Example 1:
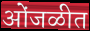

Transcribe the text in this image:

ओंजळीत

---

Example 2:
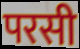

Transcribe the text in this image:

परसी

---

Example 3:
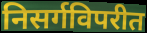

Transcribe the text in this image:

निसर्गविपरीत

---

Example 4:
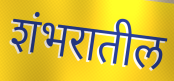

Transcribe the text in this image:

शंभरातील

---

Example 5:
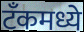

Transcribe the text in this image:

टॅंकमध्ये